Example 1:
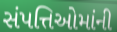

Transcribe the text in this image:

સંપત્તિઓમાંની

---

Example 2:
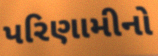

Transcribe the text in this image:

પરિણામીનો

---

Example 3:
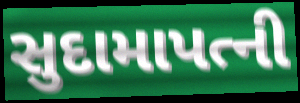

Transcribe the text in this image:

સુદામાપત્ની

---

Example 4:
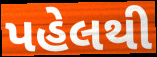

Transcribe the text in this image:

પહેલથી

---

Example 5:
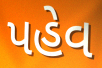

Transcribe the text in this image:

પહેવ